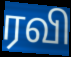
ரவி